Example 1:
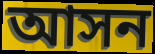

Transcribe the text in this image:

আসন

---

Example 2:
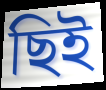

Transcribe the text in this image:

ছিই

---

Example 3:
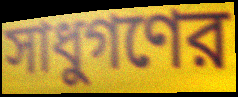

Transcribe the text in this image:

সাধুগণের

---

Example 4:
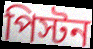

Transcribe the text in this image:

পিস্টন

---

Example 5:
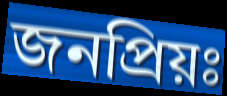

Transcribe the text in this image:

জনপ্রিয়ঃ